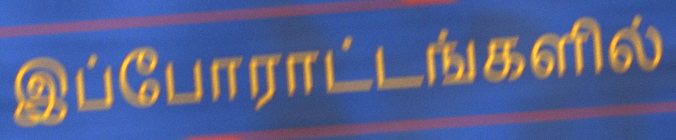
இப்போராட்டங்களில்